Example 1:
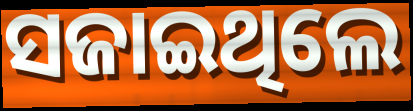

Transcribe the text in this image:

ସଜାଇଥିଲେ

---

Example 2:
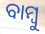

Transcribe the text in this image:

ବାମ୍ବୁ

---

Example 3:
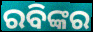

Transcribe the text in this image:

ରବିଙ୍କର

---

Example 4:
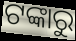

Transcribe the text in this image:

ଟଙ୍କାରୁ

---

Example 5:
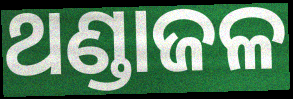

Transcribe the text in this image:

ଥଣ୍ଡାଜଳ